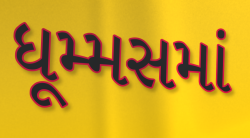
ધૂમ્મસમાં